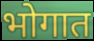
भोगात